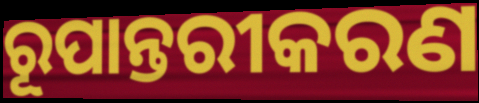
ରୂପାନ୍ତରୀକରଣ